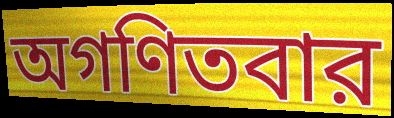
অগণিতবার